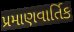
પ્રમાણવાર્તિક